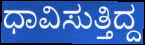
ಧಾವಿಸುತ್ತಿದ್ದ